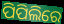
ପିପିଲିରେ